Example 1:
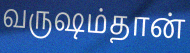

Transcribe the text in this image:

வருஷம்தான்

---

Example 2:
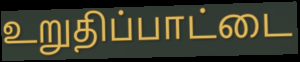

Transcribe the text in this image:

உறுதிப்பாட்டை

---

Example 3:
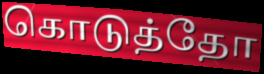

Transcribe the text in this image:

கொடுத்தோ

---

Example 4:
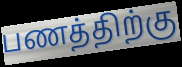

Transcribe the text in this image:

பணத்திற்கு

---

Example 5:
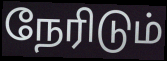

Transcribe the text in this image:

நேரிடும்